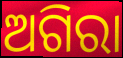
ଅଗିରା